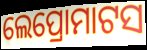
ଲେପ୍ରୋମାଟସ